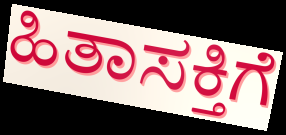
ಹಿತಾಸಕ್ತಿಗೆ